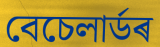
বেচেলাৰ্ডৰ